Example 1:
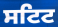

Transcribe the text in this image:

ਸਟਿਟ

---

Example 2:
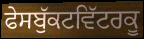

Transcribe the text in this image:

ਫੇਸਬੁੱਕਟਵਿੱਟਰਕੂ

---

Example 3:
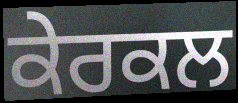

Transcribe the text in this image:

ਕੇਰਕਲ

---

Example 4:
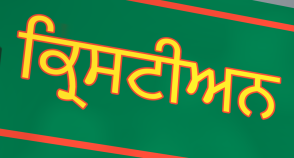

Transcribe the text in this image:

ਕ੍ਰਿਸਟੀਅਨ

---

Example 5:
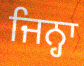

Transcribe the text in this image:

ਜਿਨ੍ਹ੍ਹਾ